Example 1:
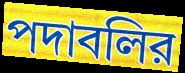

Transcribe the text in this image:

পদাবলির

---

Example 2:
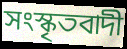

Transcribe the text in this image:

সংস্কৃতবাদী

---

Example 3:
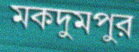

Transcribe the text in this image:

মকদুমপুর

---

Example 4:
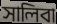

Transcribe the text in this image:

সালিবা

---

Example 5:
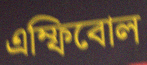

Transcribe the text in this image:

এম্ফিবোল